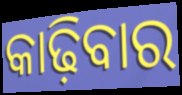
କାଢ଼ିବାର